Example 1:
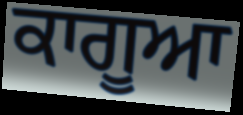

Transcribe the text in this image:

ਕਾਗੂਆ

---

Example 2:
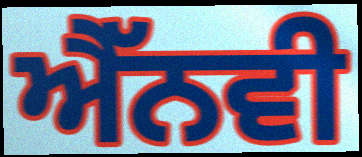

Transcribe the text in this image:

ਐੱਨਵੀ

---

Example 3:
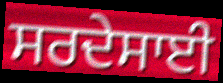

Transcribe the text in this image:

ਸਰਦੇਸਾਈ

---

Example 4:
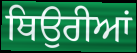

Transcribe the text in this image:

ਥਿਉਰੀਆਂ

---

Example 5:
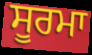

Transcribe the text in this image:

ਸੂਰਮਾ